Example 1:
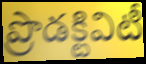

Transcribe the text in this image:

ప్రొడక్టివిటీ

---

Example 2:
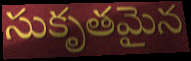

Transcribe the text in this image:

సుకృతమైన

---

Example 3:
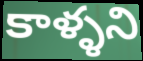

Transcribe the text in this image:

కాళ్ళని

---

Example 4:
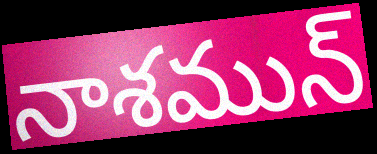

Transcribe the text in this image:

నాశమున్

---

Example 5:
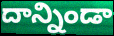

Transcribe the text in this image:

దాన్నిండా